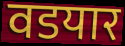
वडयार